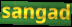
sangad